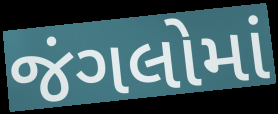
જંગલોમાં